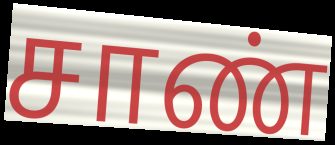
சாண்